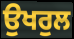
ਉਖਰੁਲ